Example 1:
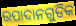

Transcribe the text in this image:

ଉପାଦାନଗୁଡିକ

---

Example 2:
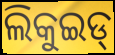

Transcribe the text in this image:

ଲିକୁଇଡ୍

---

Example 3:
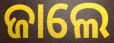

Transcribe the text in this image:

ଜାଲେ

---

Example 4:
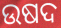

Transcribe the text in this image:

ଉଷଦ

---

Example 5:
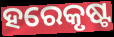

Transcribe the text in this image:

ହରେକୃଷ୍ଟ